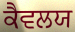
ਕੈਵਲਯ